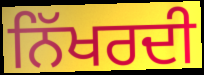
ਨਿੱਖਰਦੀ